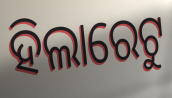
ହିଲାରେଟୁ